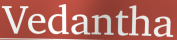
Vedantha